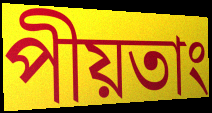
পীয়তাং